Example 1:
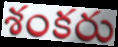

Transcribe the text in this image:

శంకరు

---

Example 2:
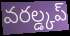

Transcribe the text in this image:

వరల్డ్కప్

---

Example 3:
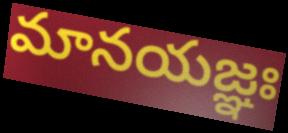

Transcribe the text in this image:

మానయజ్ఞః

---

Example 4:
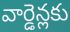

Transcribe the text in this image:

వార్డెన్లకు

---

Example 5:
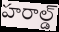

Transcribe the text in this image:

హరాల్డ్